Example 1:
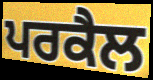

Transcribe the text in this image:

ਪਰਕੈਲ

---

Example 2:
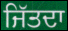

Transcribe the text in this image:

ਜਿੱਤਦਾ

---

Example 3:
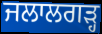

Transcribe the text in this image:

ਜਲਾਲਗੜ੍ਹ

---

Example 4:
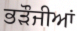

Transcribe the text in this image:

ਭੜੌਜੀਆਂ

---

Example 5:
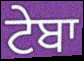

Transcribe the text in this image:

ਟੇਬਾ